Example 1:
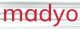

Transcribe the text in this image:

madyo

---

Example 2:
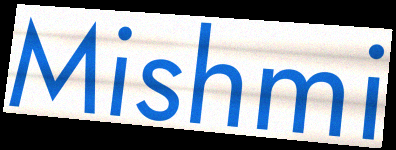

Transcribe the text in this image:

Mishmi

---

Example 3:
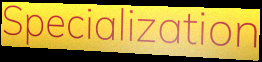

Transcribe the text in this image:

Specialization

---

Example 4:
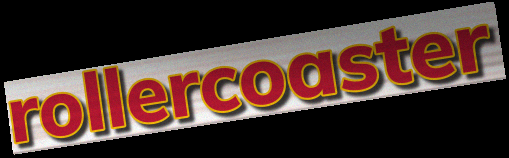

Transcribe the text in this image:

rollercoaster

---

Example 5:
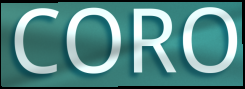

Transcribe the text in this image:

CORO